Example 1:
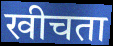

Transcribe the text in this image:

खीचता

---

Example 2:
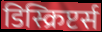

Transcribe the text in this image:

डिस्क्रिप्टर्स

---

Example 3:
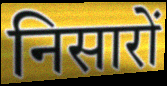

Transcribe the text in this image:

निसारों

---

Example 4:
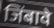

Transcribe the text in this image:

जिंबावे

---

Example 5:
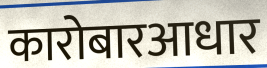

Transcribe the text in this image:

कारोबारआधार